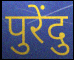
पुरेंदु